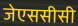
जेएससीसी